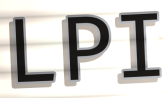
LPI